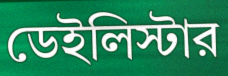
ডেইলিস্টার